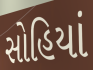
સોહિયાં